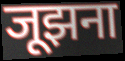
जूझना